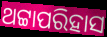
ଥଟ୍ଟାପରିହାସ